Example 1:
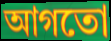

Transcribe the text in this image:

আগতো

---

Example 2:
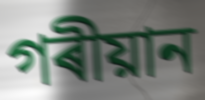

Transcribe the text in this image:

গৰীয়ান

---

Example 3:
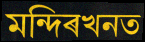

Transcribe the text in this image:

মন্দিৰখনত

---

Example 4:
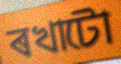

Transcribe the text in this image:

ৰখাটো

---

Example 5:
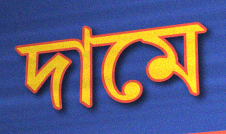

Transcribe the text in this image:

দামে